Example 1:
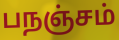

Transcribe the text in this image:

பநஞ்சம்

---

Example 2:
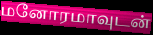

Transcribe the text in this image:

மனோரமாவுடன்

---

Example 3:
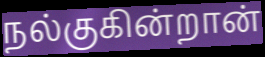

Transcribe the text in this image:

நல்குகின்றான்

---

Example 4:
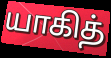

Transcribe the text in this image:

யாகித்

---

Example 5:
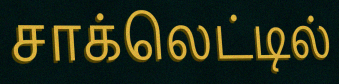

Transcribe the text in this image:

சாக்லெட்டில்